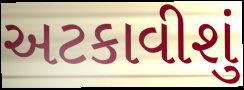
અટકાવીશું